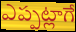
ఎప్పట్లాగే